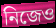
নিজেও